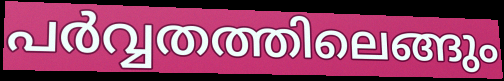
പർവ്വതത്തിലെങ്ങും